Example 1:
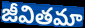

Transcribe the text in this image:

జీవితమా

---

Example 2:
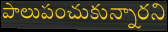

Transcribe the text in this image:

పాలుపంచుకున్నారని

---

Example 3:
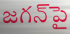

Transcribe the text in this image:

జగన్‌పై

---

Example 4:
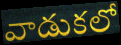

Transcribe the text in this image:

వాడుకలో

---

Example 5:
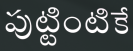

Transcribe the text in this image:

పుట్టింటికే